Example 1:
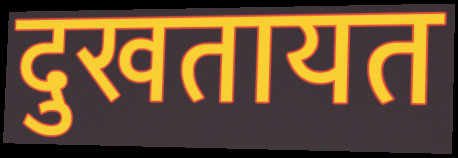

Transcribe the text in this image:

दुखतायत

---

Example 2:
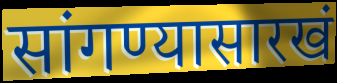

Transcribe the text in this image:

सांगण्यासारखं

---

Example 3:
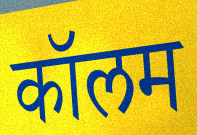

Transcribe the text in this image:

कॉलम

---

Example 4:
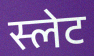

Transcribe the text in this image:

स्लेट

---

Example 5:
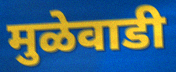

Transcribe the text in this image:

मुळेवाडी